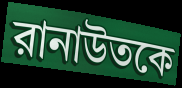
রানাউতকে